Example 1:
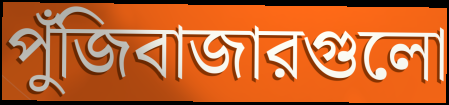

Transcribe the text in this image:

পুঁজিবাজারগুলো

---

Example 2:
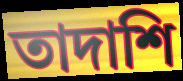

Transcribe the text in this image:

তাদাশি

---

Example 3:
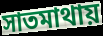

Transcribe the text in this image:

সাতমাথায়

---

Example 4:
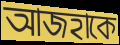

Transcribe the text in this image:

আজহাকে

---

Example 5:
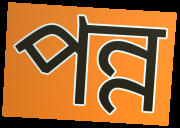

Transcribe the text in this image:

পন্ন